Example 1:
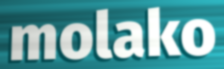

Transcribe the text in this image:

molako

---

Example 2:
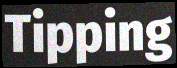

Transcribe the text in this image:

Tipping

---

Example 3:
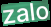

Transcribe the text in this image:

zalo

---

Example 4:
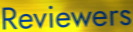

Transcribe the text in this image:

Reviewers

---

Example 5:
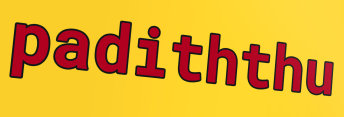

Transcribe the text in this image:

padiththu